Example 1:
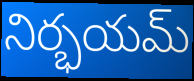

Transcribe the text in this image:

నిర్భయమ్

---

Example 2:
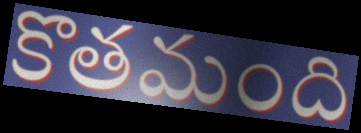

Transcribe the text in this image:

కొతమంది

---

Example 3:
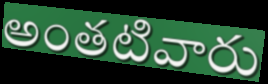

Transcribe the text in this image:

అంతటివారు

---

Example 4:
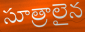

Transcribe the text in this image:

సూత్రాలైన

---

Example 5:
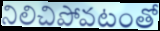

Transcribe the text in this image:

నిలిచిపోవటంతో